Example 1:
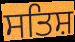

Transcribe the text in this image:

ਸਤਿਸ਼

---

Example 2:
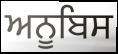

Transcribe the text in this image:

ਅਨੂਬਿਸ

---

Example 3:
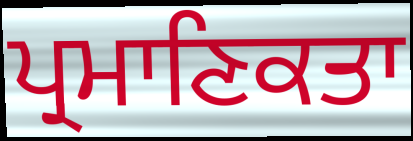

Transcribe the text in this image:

ਪ੍ਰਮਾਣਿਕਤਾ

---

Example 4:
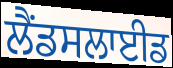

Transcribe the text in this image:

ਲੈਂਡਸਲਾਈਡ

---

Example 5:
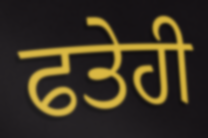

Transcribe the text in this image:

ਫਤੇਹੀ